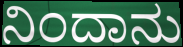
ನಿಂದಾನು